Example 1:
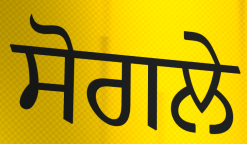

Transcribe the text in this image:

ਸੋਗਲੇ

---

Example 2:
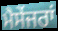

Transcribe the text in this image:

ਮੈਸੇਂਜਰਾਂ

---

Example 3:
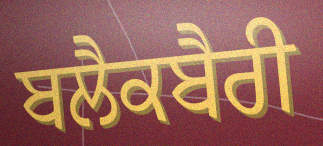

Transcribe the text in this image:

ਬਲੈਕਬੈਰੀ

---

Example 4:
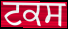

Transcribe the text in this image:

ਟਕਸ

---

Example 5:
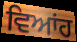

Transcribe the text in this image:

ਵਿਆਂਹ